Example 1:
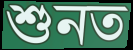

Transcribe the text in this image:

শুনত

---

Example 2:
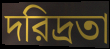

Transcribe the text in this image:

দরিদ্রতা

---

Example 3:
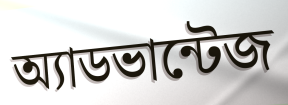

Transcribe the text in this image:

অ্যাডভান্টেজ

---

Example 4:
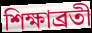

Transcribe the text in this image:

শিক্ষাব্রতী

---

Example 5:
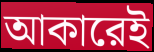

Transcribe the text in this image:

আকারেই